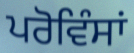
ਪਰੋਵਿੰਸਾਂ